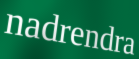
nadrendra